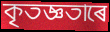
কৃতজ্ঞতাৰে